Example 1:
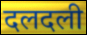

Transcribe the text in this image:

दलदली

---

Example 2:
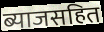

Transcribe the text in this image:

ब्याजसहित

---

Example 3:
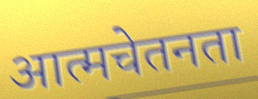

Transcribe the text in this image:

आत्मचेतनता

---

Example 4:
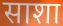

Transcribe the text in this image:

साशा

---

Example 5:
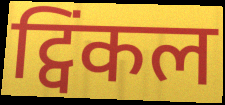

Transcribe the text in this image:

ट्विंकल